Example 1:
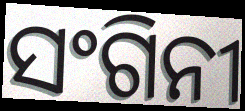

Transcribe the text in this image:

ସଂଗିନୀ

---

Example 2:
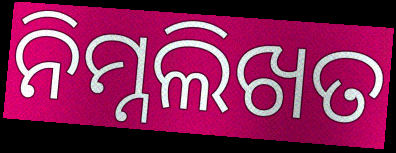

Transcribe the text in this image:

ନିମ୍ନଲିଖତ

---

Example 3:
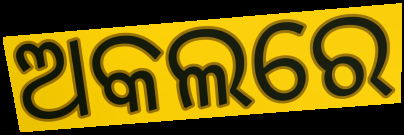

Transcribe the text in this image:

ଅକଲରେ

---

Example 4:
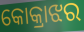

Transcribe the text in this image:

କୋକ୍ରାଝର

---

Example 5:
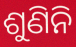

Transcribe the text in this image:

ଶୁଣିନି